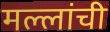
मल्लांची